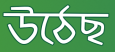
উঠেছ